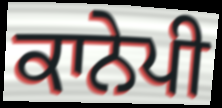
ਕਾਨੇਪੀ